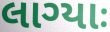
લાગ્યાઃ